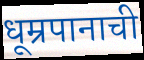
धूम्रपानाची